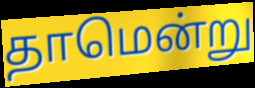
தாமென்று